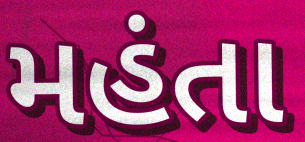
મહંતા